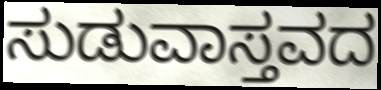
ಸುಡುವಾಸ್ತವದ